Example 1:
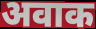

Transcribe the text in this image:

अवाक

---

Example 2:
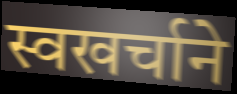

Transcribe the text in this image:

स्वखर्चाने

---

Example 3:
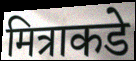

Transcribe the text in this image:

मित्राकडे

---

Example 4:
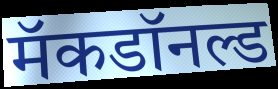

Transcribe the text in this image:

मॅकडॉनल्ड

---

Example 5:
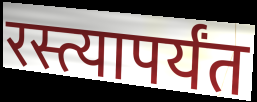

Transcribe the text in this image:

रस्त्यापर्यंत